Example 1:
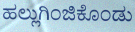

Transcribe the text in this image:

ಹಲ್ಲುಗಿಂಜಿಕೊಂಡು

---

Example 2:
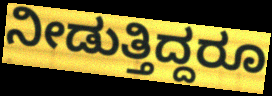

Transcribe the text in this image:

ನೀಡುತ್ತಿದ್ದರೂ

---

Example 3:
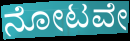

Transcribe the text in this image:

ನೋಟವೇ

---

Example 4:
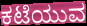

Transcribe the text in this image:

ಕಟೆಯುವ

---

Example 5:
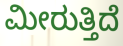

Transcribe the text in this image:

ಮೀರುತ್ತಿದೆ